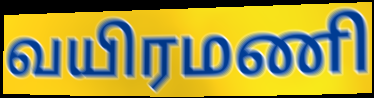
வயிரமணி